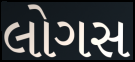
લોગસ